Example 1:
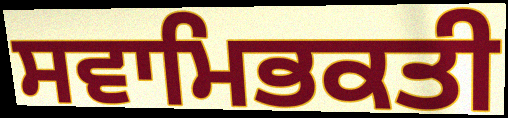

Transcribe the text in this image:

ਸਵਾਮਿਭਕਤੀ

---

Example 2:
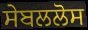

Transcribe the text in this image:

ਸੇਬਲਲੋਸ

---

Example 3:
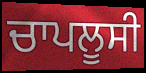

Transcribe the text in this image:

ਚਾਪਲੂਸੀ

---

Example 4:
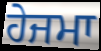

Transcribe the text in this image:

ਹੇਜਮਾ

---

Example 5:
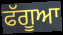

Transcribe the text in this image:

ਫੱਗੂਆ